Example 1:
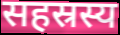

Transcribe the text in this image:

सहस्रस्य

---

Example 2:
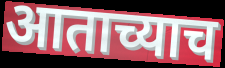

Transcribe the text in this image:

आताच्याच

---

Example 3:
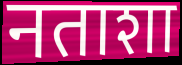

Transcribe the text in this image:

नताशा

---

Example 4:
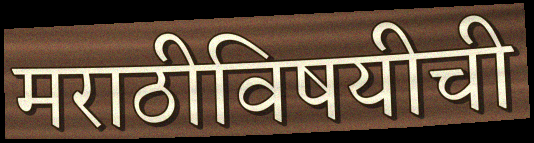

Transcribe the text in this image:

मराठीविषयीची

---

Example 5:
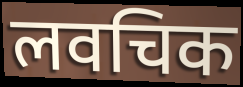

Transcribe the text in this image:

लवचिक